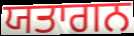
ਯਤਾਗਨ